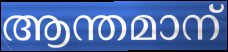
ആന്തമാന്